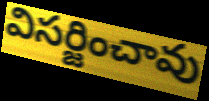
విసర్జించావు